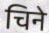
चिने